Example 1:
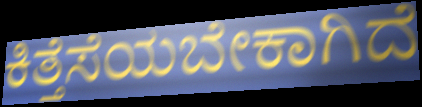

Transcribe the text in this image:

ಕಿತ್ತೆಸೆಯಬೇಕಾಗಿದೆ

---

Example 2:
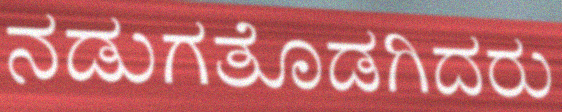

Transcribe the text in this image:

ನಡುಗತೊಡಗಿದರು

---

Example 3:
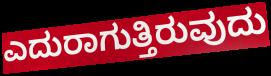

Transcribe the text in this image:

ಎದುರಾಗುತ್ತಿರುವುದು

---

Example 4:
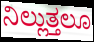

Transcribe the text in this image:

ನಿಲ್ಲುತ್ತಲೂ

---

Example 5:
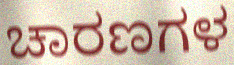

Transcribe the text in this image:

ಚಾರಣಗಳ